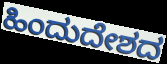
ಹಿಂದುದೇಶದ